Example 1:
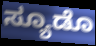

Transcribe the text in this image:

ಸ್ಯೂಡೊ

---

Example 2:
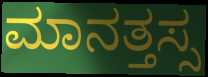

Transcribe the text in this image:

ಮಾನತ್ತಸ್ಸ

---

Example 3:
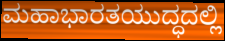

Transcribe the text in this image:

ಮಹಾಭಾರತಯುದ್ಧದಲ್ಲಿ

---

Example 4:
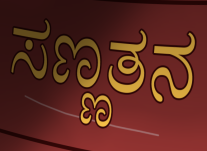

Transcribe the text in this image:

ಸಣ್ಣತನ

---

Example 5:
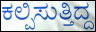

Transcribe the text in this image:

ಕಲ್ಪಿಸುತ್ತಿದ್ದ